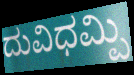
ದುವಿಧಮ್ಪಿ